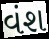
વંશ